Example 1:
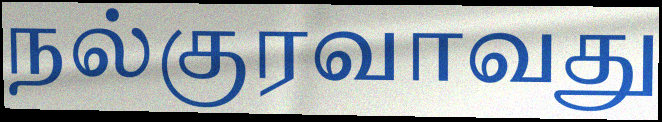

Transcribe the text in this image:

நல்குரவாவது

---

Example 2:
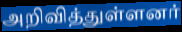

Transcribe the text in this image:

அறிவித்துள்ளனர்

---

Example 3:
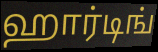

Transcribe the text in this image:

ஹார்டிங்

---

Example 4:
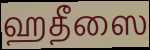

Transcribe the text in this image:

ஹதீஸை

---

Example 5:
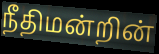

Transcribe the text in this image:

நீதிமன்றின்